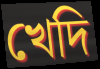
খেদি